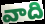
వాది